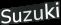
Suzuki